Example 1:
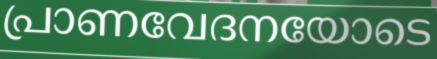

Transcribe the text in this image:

പ്രാണവേദനയോടെ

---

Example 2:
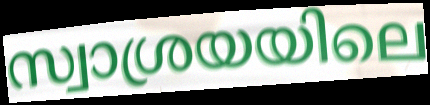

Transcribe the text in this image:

സ്വാശ്രയയിലെ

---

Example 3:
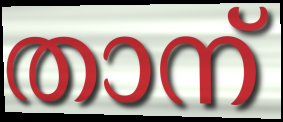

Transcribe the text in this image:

താന്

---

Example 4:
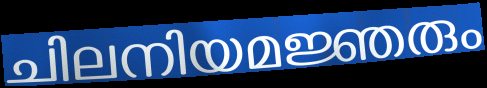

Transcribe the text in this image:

ചിലനിയമജ്ഞരും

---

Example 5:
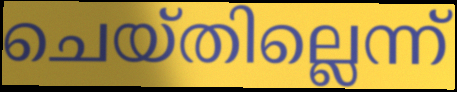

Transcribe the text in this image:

ചെയ്തില്ലെന്ന്